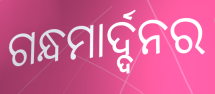
ଗନ୍ଧମାର୍ଦ୍ଦନର